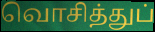
வொசித்துப்